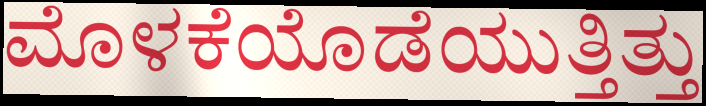
ಮೊಳಕೆಯೊಡೆಯುತ್ತಿತ್ತು